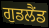
ਗੁਡਲੈਂਡ